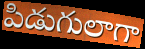
పిడుగులాగా